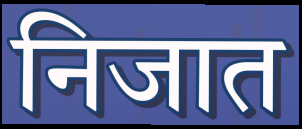
निजात